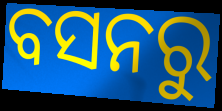
ବସନରୁ